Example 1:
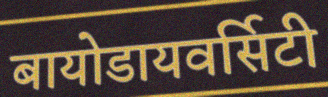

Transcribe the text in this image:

बायोडायवर्सिटी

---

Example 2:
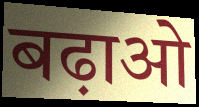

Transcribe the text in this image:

बढ़ाओ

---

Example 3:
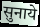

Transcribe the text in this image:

सुनाये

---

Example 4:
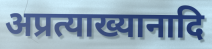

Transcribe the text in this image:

अप्रत्याख्यानादि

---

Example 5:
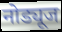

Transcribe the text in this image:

नोड्यूज